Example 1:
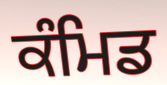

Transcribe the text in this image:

ਕੰਮਿਡ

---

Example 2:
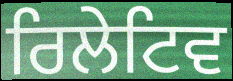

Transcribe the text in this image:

ਰਿਲੇਟਿਵ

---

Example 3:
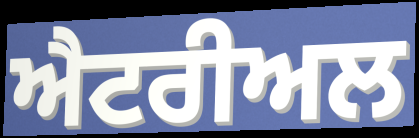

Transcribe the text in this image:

ਐਟਰੀਅਲ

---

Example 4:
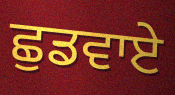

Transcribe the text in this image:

ਛੁਡਵਾਏ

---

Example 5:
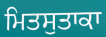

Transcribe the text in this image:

ਮਿਤਸੁਤਾਕਾ